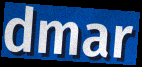
dmar